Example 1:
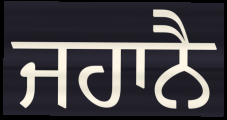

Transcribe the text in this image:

ਜਹਾਨੈ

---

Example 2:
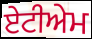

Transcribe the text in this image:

ਏਟੀਅੇਮ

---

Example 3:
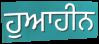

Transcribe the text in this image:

ਹੁਆਹੀਨ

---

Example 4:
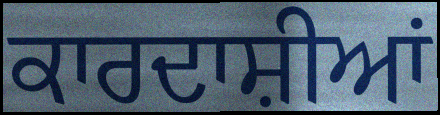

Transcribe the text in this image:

ਕਾਰਦਾਸ਼ੀਆਂ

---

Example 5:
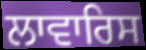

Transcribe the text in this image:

ਲਾਵਾਰਿਸ